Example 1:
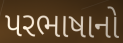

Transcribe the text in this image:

પરભાષાનો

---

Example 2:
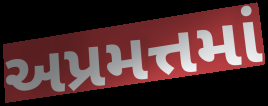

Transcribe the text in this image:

અપ્રમત્તમાં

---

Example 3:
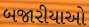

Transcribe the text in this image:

બજારીયાઓ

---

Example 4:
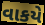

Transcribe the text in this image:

વાકયે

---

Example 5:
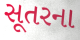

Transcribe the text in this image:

સૂતરના